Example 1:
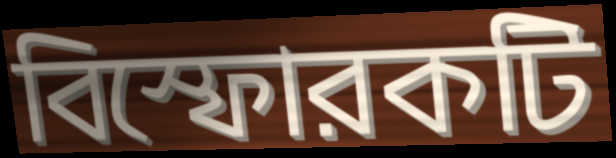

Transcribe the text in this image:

বিস্ফোরকটি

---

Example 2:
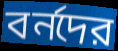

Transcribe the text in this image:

বর্নদের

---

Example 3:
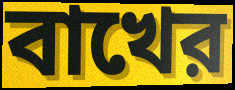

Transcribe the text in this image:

বাখের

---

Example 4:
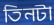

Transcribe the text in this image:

তিনটা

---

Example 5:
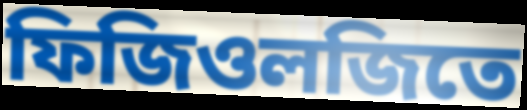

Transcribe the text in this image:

ফিজিওলজিতে